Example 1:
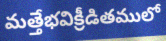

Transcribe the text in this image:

మత్తేభవిక్రీడితములో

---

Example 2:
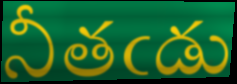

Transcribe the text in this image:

నీతఁడు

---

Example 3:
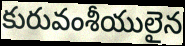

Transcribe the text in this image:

కురువంశీయులైన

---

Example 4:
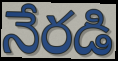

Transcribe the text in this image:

నేరడి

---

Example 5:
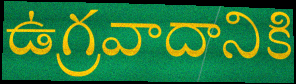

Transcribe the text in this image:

ఉగ్రవాదానికి